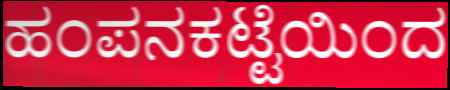
ಹಂಪನಕಟ್ಟೆಯಿಂದ